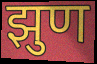
झुण